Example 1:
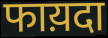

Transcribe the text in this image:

फाय़दा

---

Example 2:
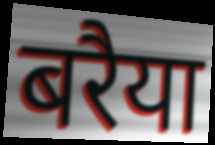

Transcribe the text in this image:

बरैया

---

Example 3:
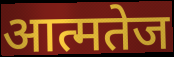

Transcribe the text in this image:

आत्मतेज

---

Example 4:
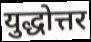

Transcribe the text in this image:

युद्धोत्तर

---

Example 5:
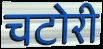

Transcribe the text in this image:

चटोरी